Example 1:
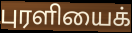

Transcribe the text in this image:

புரளியைக்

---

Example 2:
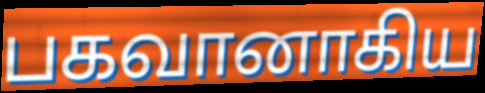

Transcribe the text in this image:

பகவானாகிய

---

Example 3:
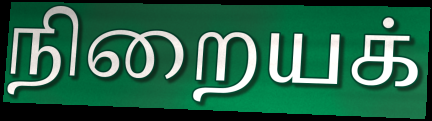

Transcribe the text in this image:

நிறையக்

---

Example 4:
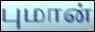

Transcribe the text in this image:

புமான்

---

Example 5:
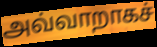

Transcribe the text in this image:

அவ்வாறாகச்